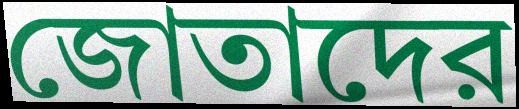
জোতাদের